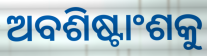
ଅବଶିଷ୍ଟାଂଶକୁ